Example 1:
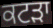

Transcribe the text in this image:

ਕਟੜਾ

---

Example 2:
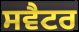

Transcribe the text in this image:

ਸਵੈਟਰ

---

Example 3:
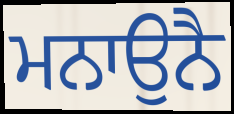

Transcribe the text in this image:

ਮਨਾਉਨੈ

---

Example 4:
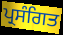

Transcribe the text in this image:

ਪ੍ਰਸੰਗਿਤ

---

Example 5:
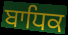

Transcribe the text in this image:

ਬਾਧਿਕ